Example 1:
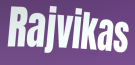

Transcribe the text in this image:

Rajvikas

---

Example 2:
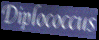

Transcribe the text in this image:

Diplococcus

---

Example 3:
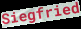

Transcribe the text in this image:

Siegfried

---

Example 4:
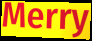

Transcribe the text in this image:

Merry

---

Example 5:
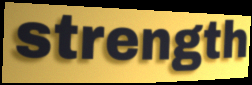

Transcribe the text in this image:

strength